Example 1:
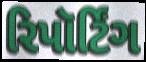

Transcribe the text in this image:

રિપૉર્ટિંગ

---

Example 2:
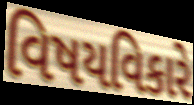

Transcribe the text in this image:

વિષયવિકારે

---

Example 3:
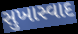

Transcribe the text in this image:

સુખાસ્વાદ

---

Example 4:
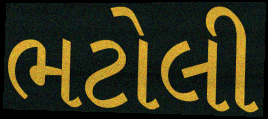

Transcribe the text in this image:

ભટોલી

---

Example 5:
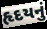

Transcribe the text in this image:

હૃદયનું